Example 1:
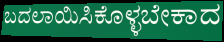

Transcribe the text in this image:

ಬದಲಾಯಿಸಿಕೊಳ್ಳಬೇಕಾದ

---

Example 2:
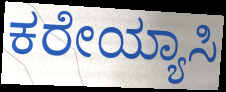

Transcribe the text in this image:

ಕರೇಯ್ಯಾಸಿ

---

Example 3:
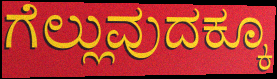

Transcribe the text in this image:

ಗೆಲ್ಲುವುದಕ್ಕೂ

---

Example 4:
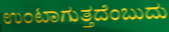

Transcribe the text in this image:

ಉಂಟಾಗುತ್ತದೆಂಬುದು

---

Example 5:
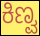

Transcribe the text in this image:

ಕಿಣ್ವ